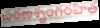
చరణశృంగరహిత